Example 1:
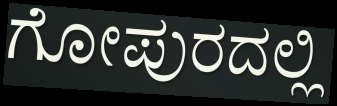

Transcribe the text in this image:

ಗೋಪುರದಲ್ಲಿ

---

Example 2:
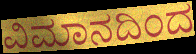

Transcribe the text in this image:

ವಿಮಾನದಿಂದ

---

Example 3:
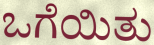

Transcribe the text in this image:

ಒಗೆಯಿತು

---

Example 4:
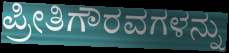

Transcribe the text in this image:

ಪ್ರೀತಿಗೌರವಗಳನ್ನು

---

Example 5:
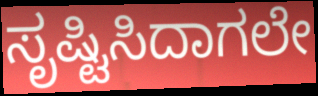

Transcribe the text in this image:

ಸೃಷ್ಟಿಸಿದಾಗಲೇ